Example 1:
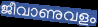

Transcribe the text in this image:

ജീവാണുവളം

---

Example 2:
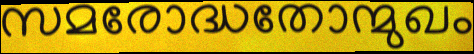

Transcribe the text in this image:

സമരോദ്ധതോന്മുഖം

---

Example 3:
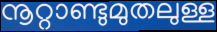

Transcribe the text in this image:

നൂറ്റാണ്ടുമുതലുള്ള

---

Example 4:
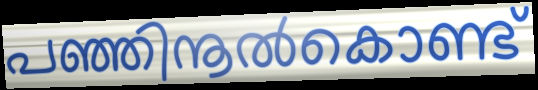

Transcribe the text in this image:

പഞ്ഞിനൂൽകൊണ്ട്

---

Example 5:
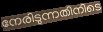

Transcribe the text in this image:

നേരിടുന്നതിനിടെ